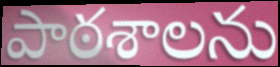
పాఠశాలను